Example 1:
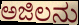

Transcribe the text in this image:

ಅಜಿಲನು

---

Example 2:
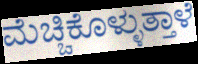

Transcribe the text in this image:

ಮೆಚ್ಚಿಕೊಳ್ಳುತ್ತಾಳೆ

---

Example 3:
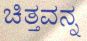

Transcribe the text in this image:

ಚಿತ್ತವನ್ನ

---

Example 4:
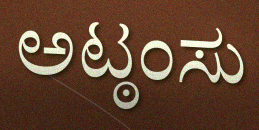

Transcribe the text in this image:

ಅಟ್ಠಂಸು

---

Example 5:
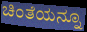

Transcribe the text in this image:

ಚಿಂತೆಯನ್ನೂ